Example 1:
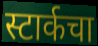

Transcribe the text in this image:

स्टार्कचा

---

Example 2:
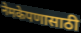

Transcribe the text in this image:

नेमकेपणासाठी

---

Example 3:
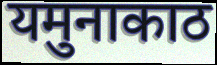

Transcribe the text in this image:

यमुनाकाठ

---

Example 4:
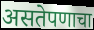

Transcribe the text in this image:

असतेपणाचा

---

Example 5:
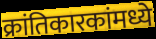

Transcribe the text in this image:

क्रांतिकारकांमध्ये